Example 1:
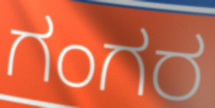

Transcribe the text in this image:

ಗಂಗರ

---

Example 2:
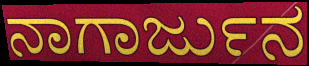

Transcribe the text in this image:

ನಾಗಾರ್ಜುನ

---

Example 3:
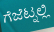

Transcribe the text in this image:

ಗೆಜೆಟ್ನಲ್ಲಿ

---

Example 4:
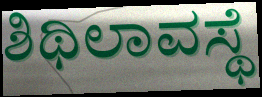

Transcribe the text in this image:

ಶಿಥಿಲಾವಸ್ಥೆ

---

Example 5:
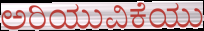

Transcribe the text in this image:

ಅರಿಯುವಿಕೆಯು